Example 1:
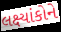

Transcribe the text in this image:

લક્ષ્યાંકોને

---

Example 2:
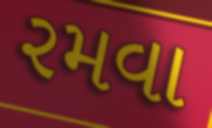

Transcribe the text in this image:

રમવા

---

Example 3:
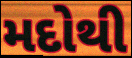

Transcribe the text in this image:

મદોથી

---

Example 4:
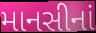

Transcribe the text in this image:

માનસીનાં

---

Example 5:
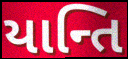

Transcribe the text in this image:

યાન્તિ